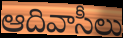
ఆదివాసీలు